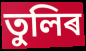
তুলিৰ